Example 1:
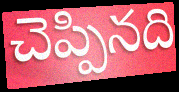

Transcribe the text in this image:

చెప్పినది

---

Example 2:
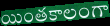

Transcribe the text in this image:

యింతకాలంగా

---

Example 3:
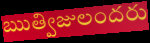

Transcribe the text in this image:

ఋత్విజులందరు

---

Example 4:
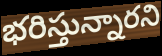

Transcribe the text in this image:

భరిస్తున్నారని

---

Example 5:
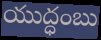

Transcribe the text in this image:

యుద్ధంబు